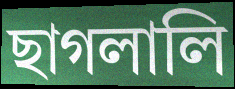
ছাগলালি